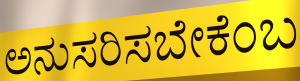
ಅನುಸರಿಸಬೇಕೆಂಬ